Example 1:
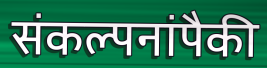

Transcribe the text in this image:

संकल्पनांपैकी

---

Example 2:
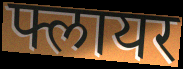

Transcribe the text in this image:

फ्लायर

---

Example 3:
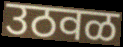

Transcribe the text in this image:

उठवळ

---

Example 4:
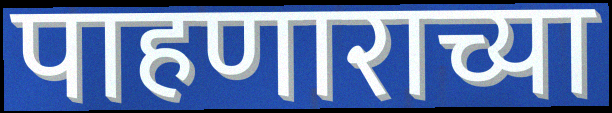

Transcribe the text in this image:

पाहणाराच्या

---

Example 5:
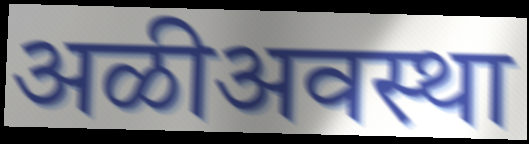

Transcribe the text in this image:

अळीअवस्था